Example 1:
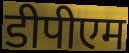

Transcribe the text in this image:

डीपीएम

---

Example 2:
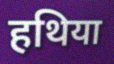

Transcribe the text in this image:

हथिया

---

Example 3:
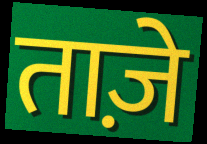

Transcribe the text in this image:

ताज़े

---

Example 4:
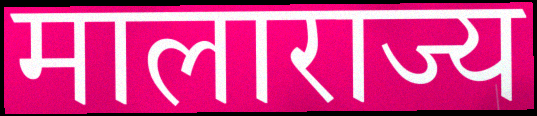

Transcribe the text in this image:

मालाराज्य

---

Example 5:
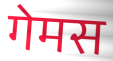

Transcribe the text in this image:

गेमस